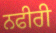
ਨਫੀਰੀ